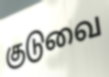
குடுவை